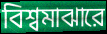
বিশ্বমাঝারে